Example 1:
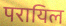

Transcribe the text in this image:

परायिल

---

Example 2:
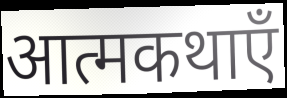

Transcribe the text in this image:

आत्मकथाएँ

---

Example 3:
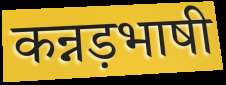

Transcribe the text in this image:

कन्नड़भाषी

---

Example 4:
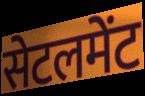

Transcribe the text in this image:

सेटलमेंट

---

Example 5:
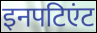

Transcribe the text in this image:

इनपटिएंट